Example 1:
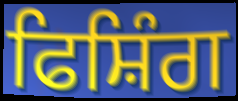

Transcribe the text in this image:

ਫਿਸ਼ਿੰਗ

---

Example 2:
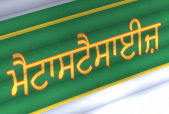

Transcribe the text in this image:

ਮੈਟਾਸਟੈਸਾਈਜ਼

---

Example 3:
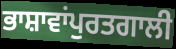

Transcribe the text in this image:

ਭਾਸ਼ਾਵਾਂਪੁਰਤਗਾਲੀ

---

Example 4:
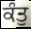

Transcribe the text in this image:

ਕੰਤੁ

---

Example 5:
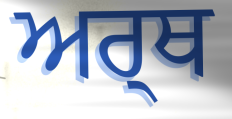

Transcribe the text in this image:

ਅਰ੍ਥ